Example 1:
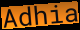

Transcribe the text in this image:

Adhia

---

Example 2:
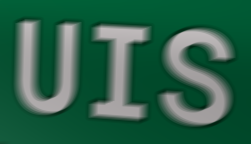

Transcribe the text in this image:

UIS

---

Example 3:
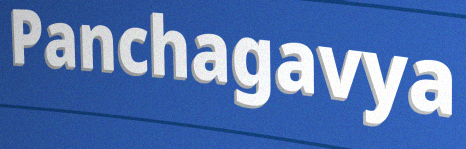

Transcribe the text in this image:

Panchagavya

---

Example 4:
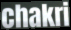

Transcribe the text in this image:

chakri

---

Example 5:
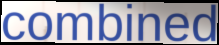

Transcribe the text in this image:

combined